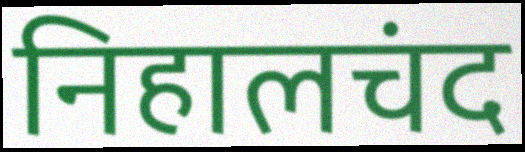
निहालचंद